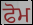
ਫੋਮ